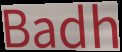
Badh